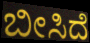
ಬೀಸಿದೆ